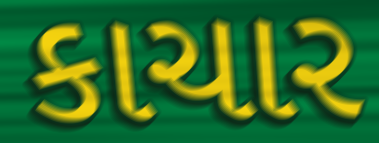
કાચાર